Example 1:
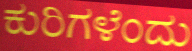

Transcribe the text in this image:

ಕುರಿಗಳೆಂದು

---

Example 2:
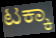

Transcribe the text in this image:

ಟಕ್ಕಾ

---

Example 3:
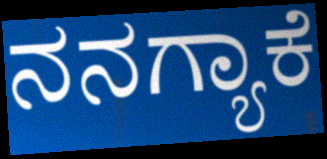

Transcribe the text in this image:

ನನಗ್ಯಾಕೆ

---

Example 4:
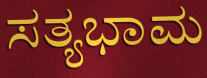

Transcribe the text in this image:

ಸತ್ಯಭಾಮ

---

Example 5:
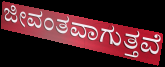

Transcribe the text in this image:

ಜೀವಂತವಾಗುತ್ತವೆ